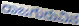
ರಾಜಗುರುವಿನ